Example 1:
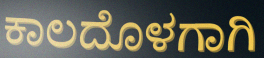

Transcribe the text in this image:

ಕಾಲದೊಳಗಾಗಿ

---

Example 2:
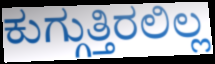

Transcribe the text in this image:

ಕುಗ್ಗುತ್ತಿರಲಿಲ್ಲ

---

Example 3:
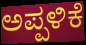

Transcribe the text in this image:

ಅಪ್ಪಳಿಕೆ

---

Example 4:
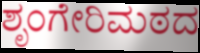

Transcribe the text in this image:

ಶೃಂಗೇರಿಮಠದ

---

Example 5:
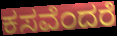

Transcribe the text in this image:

ಕಸವೆಂದರೆ